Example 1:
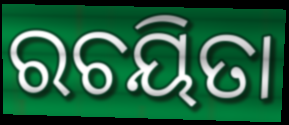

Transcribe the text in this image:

ରଚୟିତା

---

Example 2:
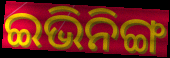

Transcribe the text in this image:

ଇଭିନିଙ୍ଗ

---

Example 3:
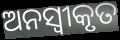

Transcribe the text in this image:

ଅନସ୍ବୀକୃତ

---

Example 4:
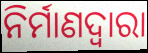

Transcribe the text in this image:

ନିର୍ମାଣଦ୍ୱାରା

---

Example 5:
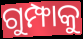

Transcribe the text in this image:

ଗୁମ୍ଫାକୁ